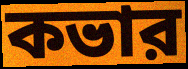
কভার